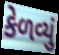
કેળવ્યું